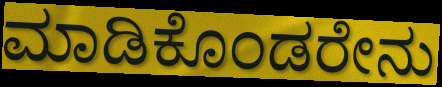
ಮಾಡಿಕೊಂಡರೇನು